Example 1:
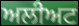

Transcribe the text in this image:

ਅਲੀਅਟ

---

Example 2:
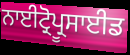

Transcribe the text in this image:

ਨਾਈਟ੍ਰੋਪ੍ਰੂਸਾਈਡ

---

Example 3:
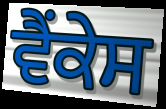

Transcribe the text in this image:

ਵੈਂਕੇਸ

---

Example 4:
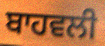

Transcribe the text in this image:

ਬਾਹਵਲੀ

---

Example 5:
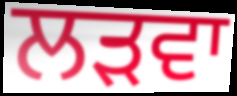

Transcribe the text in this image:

ਲੜਵਾ